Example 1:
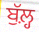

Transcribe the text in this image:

ਬੁੱਲ਼੍ਹ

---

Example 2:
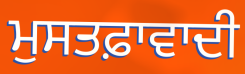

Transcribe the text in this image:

ਮੁਸਤਫ਼ਾਵਾਦੀ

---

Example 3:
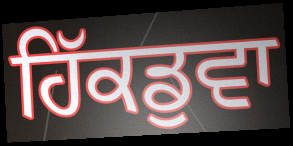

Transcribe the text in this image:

ਹਿੱਕਡੁਵਾ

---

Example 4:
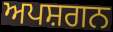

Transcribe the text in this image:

ਅਪਸ਼ਗਨ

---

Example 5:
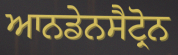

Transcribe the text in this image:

ਆਨਡੇਨਸੈਟ੍ਰੋਨ